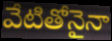
వేటితోనైనా